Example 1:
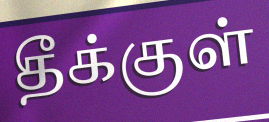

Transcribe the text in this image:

தீக்குள்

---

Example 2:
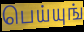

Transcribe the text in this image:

பெய்யுங்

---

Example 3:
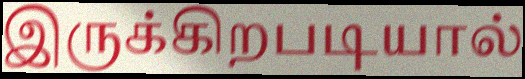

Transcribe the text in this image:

இருக்கிறபடியால்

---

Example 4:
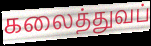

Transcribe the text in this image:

கலைத்துவப்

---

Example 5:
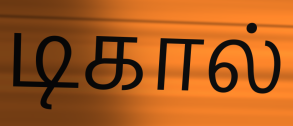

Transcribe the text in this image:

டிகால்